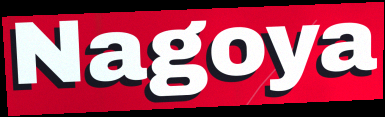
Nagoya